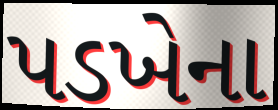
પડખેના